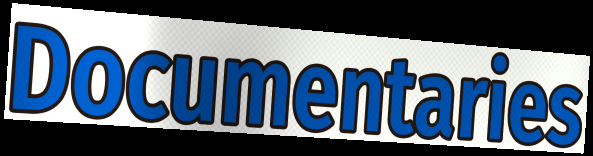
Documentaries